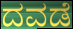
ದವಡೆ